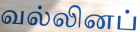
வல்லினப்